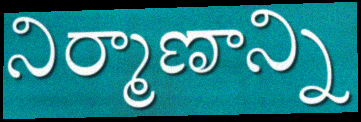
నిర్మాణాన్ని